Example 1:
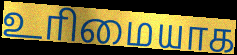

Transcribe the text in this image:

உரிமையாக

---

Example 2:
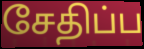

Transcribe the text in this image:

சேதிப்ப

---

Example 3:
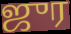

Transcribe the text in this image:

ஜுர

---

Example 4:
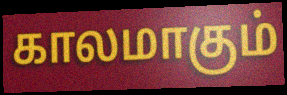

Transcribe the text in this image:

காலமாகும்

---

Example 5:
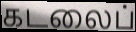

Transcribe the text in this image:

கடலைப்